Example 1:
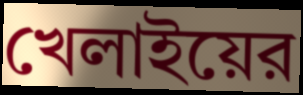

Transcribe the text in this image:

খেলাইয়ের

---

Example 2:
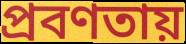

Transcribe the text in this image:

প্রবণতায়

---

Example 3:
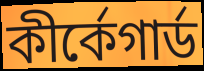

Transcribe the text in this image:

কীর্কেগার্ড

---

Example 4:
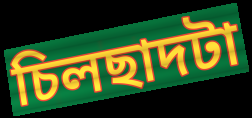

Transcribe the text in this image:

চিলছাদটা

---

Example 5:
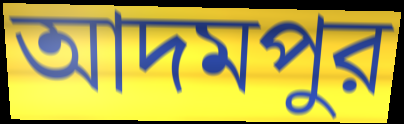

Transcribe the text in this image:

আদমপুর